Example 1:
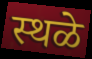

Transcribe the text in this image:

स्थळे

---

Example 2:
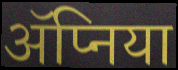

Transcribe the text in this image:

ॲप्निया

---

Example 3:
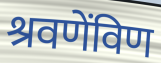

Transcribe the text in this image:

श्रवणेंविण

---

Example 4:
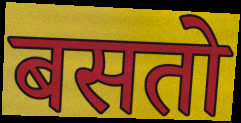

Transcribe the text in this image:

बसतो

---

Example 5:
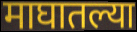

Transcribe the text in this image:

माघातल्या